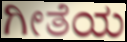
ಗೀತೆಯ